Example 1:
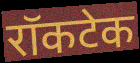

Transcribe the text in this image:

रॉकटेक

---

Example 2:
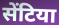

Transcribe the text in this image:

सेंटिया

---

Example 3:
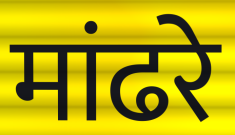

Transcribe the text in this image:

मांढरे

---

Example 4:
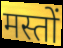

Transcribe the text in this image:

मस्तों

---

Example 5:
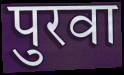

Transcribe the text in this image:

पुरवा